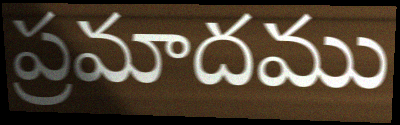
ప్రమాదము